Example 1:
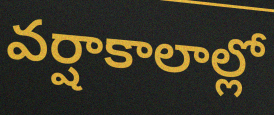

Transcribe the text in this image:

వర్షాకాలాల్లో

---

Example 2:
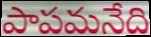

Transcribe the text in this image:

పాపమనేది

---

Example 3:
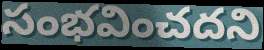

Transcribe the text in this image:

సంభవించదని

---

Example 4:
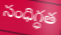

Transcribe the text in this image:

సంధిగ్ధత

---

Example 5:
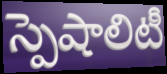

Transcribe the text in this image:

స్పెషాలిటీ